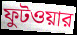
ফুটওয়ার